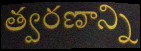
త్వరణాన్ని